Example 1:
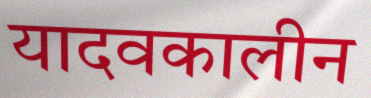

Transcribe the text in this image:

यादवकालीन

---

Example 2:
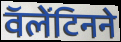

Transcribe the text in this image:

वॅलेंटिनने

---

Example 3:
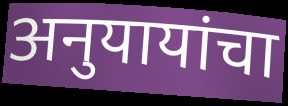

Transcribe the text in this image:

अनुयायांचा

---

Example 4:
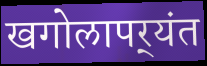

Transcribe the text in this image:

खगोलापर्यंत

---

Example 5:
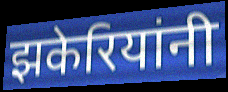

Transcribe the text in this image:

झकेरियांनी